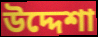
উদ্দেশা